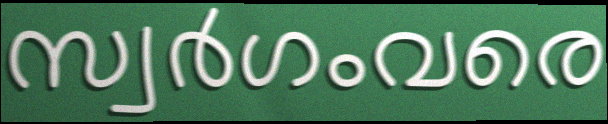
സ്വർഗംവരെ